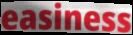
easiness